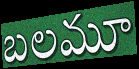
బలమూ